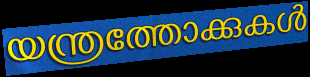
യന്ത്രത്തോക്കുകൾ